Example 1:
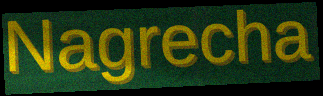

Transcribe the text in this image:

Nagrecha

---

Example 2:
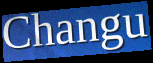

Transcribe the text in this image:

Changu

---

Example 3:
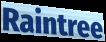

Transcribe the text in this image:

Raintree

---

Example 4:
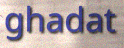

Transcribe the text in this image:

ghadat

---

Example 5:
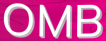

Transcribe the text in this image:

OMB